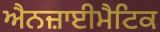
ਐਨਜ਼ਾਈਮੈਟਿਕ